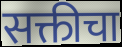
सक्तीचा